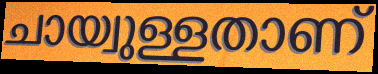
ചായ്വുള്ളതാണ്